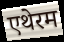
एथेरम